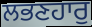
ਲਭਣਹਾਰੁ